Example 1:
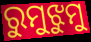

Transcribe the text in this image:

ରୁମୁଝୁମୁ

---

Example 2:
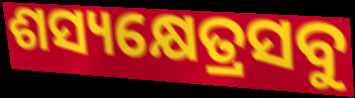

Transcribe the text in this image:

ଶସ୍ୟକ୍ଷେତ୍ରସବୁ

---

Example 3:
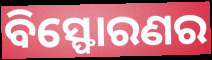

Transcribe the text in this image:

ବିସ୍ଫୋରଣର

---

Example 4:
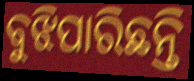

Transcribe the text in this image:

ବୁଝିପାରିଛନ୍ତି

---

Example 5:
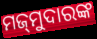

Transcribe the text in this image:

ମଜ୍‍ମୁଦାରଙ୍କ